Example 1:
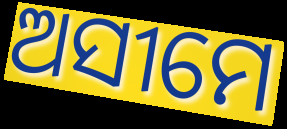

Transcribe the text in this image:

ଅସୀମେ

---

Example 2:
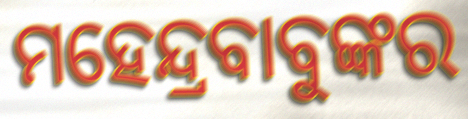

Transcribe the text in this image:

ମହେନ୍ଦ୍ରବାବୁଙ୍କର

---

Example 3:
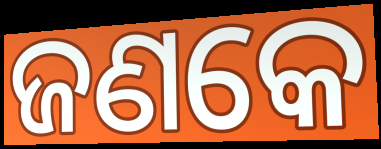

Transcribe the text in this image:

ଜଣକେ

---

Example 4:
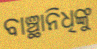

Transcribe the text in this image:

ବାଞ୍ଛାନିଧିଙ୍କୁ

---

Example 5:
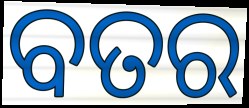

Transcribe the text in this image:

ବତର